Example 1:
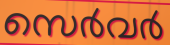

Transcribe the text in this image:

സെർവർ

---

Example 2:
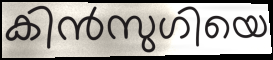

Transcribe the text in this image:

കിൻസുഗിയെ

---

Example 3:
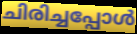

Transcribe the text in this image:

ചിരിച്ചപ്പോൾ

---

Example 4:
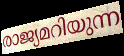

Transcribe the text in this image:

രാജ്യമറിയുന്ന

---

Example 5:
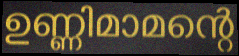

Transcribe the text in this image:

ഉണ്ണിമാമന്റെ